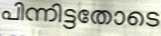
പിന്നിട്ടതോടെ